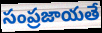
సంప్రజాయతే